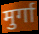
मुर्गा